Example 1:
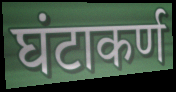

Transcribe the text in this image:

घंटाकर्ण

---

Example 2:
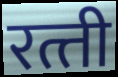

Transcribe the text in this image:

रत्‍ती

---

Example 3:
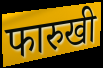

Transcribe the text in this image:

फारुखी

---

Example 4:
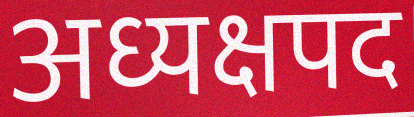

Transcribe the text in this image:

अध्यक्षपद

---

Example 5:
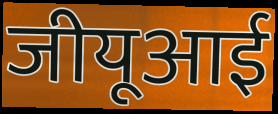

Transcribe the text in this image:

जीयूआई